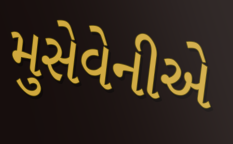
મુસેવેનીએ